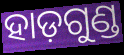
ହାଡ଼ଗୁଣ୍ଡ